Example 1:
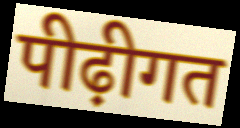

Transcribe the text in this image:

पीढ़ीगत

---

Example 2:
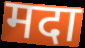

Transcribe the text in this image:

मदा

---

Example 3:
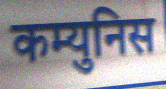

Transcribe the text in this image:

कम्युनिस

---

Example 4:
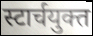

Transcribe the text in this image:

स्टार्चयुक्त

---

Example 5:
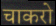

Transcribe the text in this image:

चाकरो